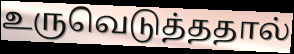
உருவெடுத்ததால்